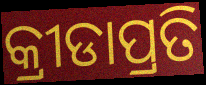
କ୍ରୀଡାପ୍ରତି